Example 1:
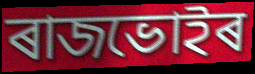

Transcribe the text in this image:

ৰাজভোইৰ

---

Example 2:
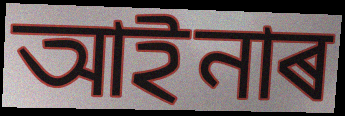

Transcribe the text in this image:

আইনাৰ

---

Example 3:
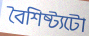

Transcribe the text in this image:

বৈশিষ্ট্যটো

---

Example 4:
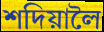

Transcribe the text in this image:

শদিয়ালৈ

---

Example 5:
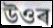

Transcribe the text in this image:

উওৰ